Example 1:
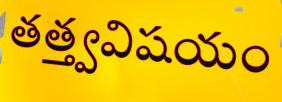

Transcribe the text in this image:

తత్త్వవిషయం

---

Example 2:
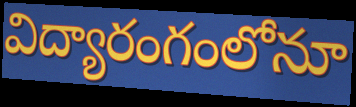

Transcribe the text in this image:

విద్యారంగంలోనూ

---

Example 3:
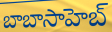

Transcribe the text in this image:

బాబాసాహెబ్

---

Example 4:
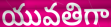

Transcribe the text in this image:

యువతిగా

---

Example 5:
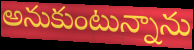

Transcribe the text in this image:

అనుకుంటున్నాను